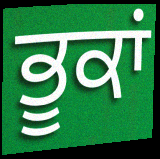
ਭੂਕਾਂ